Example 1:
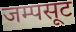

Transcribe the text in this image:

जम्पसूट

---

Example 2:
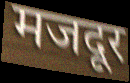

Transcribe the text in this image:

मजदूर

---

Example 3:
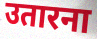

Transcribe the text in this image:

उतारना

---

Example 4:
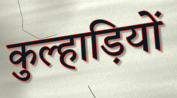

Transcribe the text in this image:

कुल्हाड़ियों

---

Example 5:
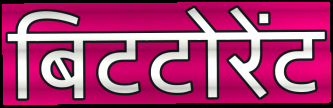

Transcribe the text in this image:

बिटटोरेंट